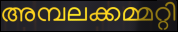
അമ്പലക്കമ്മറ്റി